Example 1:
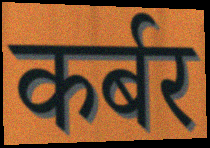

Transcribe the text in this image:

कर्बर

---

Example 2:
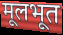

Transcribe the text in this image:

मूलभूत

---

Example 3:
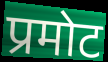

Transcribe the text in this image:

प्रमोट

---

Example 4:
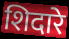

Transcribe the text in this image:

शिदारे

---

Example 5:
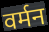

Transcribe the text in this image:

वर्मन